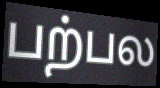
பற்பல